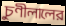
চুণীলালের